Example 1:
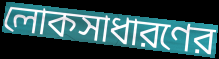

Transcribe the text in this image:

লোকসাধারণের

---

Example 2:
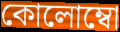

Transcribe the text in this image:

কোলোম্বো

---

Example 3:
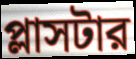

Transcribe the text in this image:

প্লাসটার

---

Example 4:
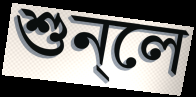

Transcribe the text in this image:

শুন্লে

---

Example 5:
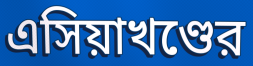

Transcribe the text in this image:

এসিয়াখণ্ডের